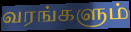
வரங்களும்